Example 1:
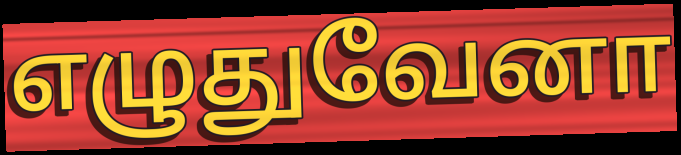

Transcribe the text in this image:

எழுதுவேனா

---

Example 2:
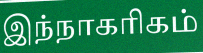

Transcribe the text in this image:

இந்நாகரிகம்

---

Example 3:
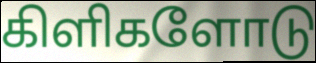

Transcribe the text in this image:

கிளிகளோடு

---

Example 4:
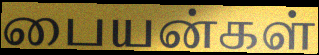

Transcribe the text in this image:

பையன்கள்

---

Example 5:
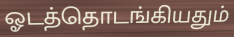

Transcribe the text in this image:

ஓடத்தொடங்கியதும்